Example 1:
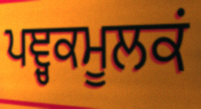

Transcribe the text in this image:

ਪਞ੍ਚਕਮੂਲਕਂ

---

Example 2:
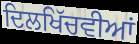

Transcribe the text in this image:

ਦਿਲਖਿੱਚਵੀਆਂ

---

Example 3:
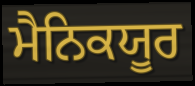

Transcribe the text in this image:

ਮੈਨਿਕਯੂਰ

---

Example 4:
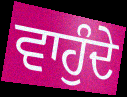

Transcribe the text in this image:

ਵਾਹੁੰਦੇ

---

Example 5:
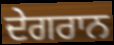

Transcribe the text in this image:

ਦੇਗਰਾਨ